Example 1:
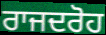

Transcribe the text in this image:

ਰਾਜਦਰੋਹ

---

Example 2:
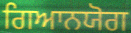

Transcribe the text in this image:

ਗਿਆਨਯੋਗ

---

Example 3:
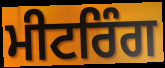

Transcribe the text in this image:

ਮੀਟਰਿੰਗ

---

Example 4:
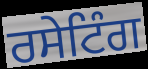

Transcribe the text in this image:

ਰਸੇਟਿੰਗ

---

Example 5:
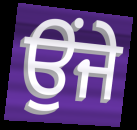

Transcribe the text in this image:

ਉਂਜੇ